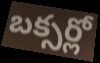
బక్సర్లో